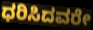
ಧರಿಸಿದವರೇ